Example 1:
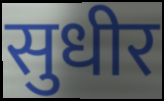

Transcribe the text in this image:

सुधीर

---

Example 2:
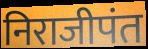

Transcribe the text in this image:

निराजीपंत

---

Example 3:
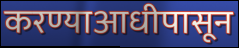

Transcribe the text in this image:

करण्याआधीपासून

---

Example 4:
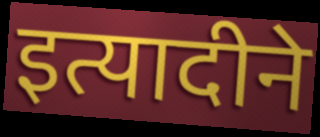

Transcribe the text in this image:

इत्यादीने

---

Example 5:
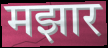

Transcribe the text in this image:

मझार